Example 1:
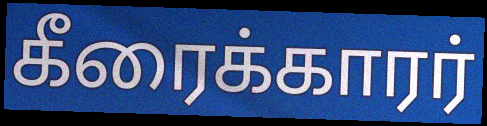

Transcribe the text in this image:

கீரைக்காரர்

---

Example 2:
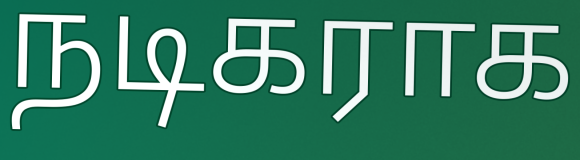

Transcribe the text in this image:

நடிகராக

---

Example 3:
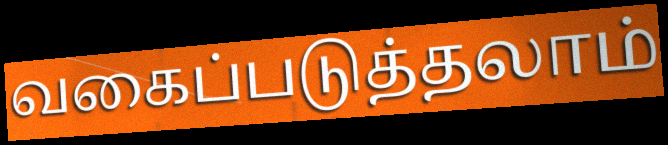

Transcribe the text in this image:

வகைப்படுத்தலாம்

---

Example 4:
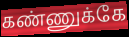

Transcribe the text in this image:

கண்ணுக்கே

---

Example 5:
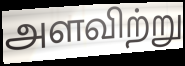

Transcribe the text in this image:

அளவிற்று